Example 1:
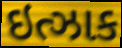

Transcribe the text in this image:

ઇત્ઝાક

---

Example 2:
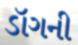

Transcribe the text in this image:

ડૉગની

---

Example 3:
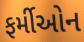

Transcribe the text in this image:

ફર્મીઓન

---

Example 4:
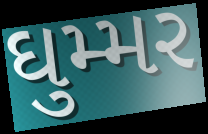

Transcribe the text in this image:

ઘુમ્મર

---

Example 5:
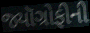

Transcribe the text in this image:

જ્યૉગ્રોફીની